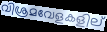
വിശ്രമവേളകളില്